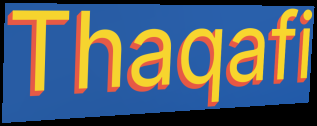
Thaqafi